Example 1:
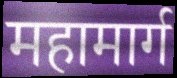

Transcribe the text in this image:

महामार्ग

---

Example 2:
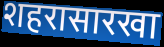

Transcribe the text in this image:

शहरासारखा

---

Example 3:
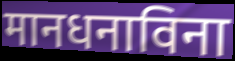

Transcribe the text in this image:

मानधनाविना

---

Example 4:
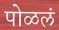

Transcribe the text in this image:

पोळलं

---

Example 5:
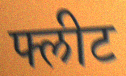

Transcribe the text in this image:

फ्लीट